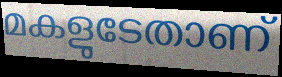
മകളുടേതാണ്